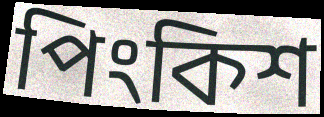
পিংকিশ